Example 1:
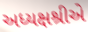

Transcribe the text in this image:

અધ્યક્ષશ્રીએ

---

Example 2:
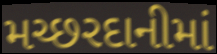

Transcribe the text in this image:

મચ્છરદાનીમાં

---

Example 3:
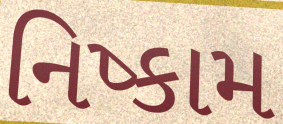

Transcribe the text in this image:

નિષ્કામ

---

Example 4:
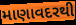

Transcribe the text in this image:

માણાવદરથી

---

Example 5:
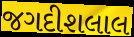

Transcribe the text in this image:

જગદીશલાલ